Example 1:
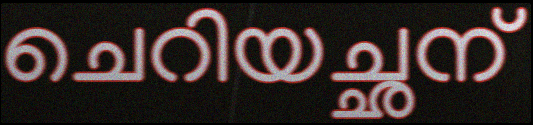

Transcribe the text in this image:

ചെറിയച്ഛന്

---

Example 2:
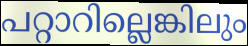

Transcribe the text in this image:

പറ്റാറില്ലെങ്കിലും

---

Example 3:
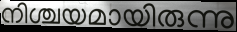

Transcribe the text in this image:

നിശ്ചയമായിരുന്നു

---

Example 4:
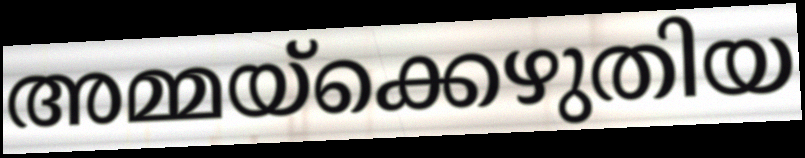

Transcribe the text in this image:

അമ്മയ്ക്കെഴുതിയ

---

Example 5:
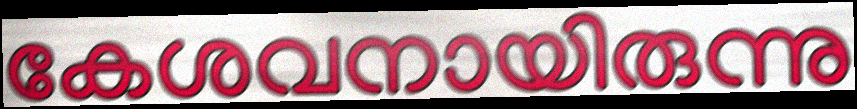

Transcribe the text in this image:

കേശവനായിരുന്നു